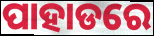
ପାହାଡରେ